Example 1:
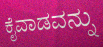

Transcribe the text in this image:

ಕೈವಾಡವನ್ನು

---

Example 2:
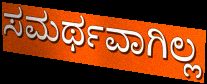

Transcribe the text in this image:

ಸಮರ್ಥವಾಗಿಲ್ಲ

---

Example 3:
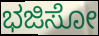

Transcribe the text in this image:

ಭಜಿಸೋ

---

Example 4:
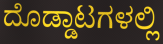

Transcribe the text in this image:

ದೊಡ್ಡಾಟಗಳಲ್ಲಿ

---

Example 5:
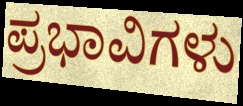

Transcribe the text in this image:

ಪ್ರಭಾವಿಗಳು